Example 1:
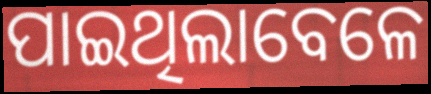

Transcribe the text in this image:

ପାଇଥିଲାବେଳେ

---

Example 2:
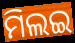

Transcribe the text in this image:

ମିଲଇ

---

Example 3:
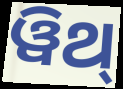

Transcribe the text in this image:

ୱିଥ୍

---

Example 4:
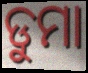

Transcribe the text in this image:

ଡୁମା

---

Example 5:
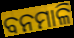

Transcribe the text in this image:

ବନମାଳି